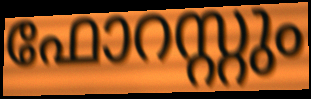
ഫോറസ്റ്റും